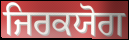
ਜਿਰਕਯੋਗ